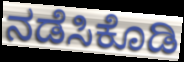
ನಡೆಸಿಕೊಡಿ